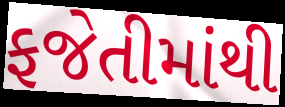
ફજેતીમાંથી